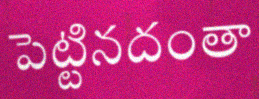
పెట్టినదంతా